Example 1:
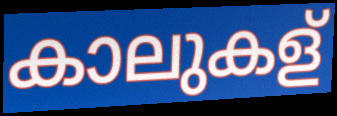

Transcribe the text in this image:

കാലുകള്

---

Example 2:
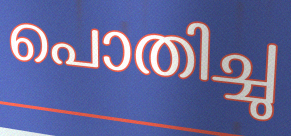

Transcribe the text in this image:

പൊതിച്ചു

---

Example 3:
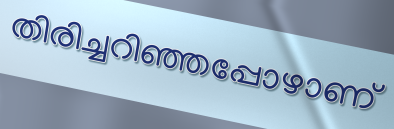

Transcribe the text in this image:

തിരിച്ചറിഞ്ഞപ്പോഴാണ്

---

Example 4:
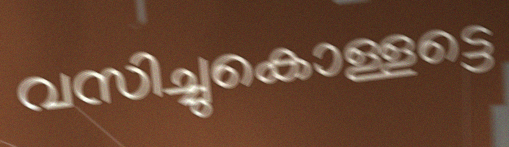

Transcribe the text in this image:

വസിച്ചുകൊള്ളട്ടെ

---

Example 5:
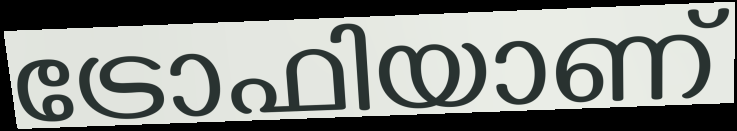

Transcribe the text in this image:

ട്രോഫിയാണ്